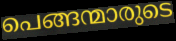
പെങ്ങന്മാരുടെ